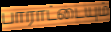
பாராட்டையும்